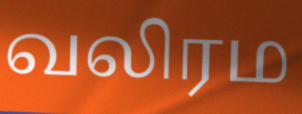
வலிரம